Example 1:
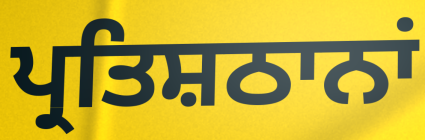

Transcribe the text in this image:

ਪ੍ਰਤਿਸ਼ਠਾਨਾਂ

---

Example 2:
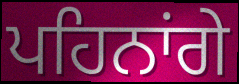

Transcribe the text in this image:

ਪਹਿਨਾਂਗੇ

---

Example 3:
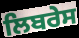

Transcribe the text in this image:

ਲਿਬਰੇਸ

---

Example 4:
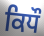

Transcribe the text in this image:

ਕਿਧੌ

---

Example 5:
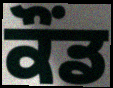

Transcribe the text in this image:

ਕੌਂਡ